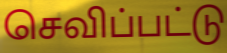
செவிப்பட்டு